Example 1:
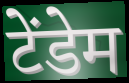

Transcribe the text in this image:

टेंडेम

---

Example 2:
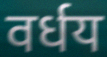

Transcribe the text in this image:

वर्धय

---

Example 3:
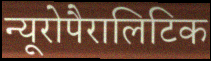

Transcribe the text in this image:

न्यूरोपैरालिटिक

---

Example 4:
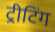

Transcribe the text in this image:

ट्रीटिंग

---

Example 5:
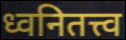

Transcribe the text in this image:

ध्वनितत्त्व